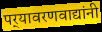
पर्यावरणवाद्यांनी